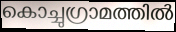
കൊച്ചുഗ്രാമത്തിൽ